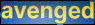
avenged